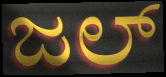
ಜಲ್